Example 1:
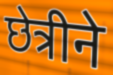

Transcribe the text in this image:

छेत्रीने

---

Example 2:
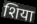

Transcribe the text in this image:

शिया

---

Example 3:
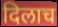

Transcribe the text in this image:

दिलाच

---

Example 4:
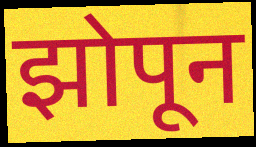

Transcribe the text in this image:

झोपून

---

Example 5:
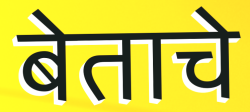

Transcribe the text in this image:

बेताचे